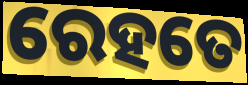
ରେହତେ